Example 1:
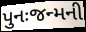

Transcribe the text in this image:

પુનઃજન્મની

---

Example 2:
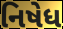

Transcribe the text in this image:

નિષેધ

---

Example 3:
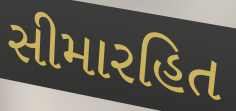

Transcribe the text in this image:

સીમારહિત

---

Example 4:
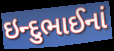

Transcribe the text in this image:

ઇન્દુભાઈનાં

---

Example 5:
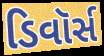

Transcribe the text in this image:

ડિવૉર્સ